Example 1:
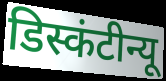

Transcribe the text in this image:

डिस्कंटीन्यू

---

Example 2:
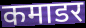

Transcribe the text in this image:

कमाडर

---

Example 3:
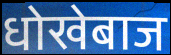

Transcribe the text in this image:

धोखेबाज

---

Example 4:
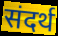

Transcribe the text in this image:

संदर्थ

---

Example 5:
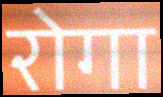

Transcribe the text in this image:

रोगा